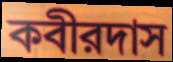
কবীরদাস